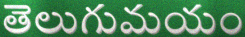
తెలుగుమయం